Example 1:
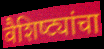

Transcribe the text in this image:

वैशिष्ट्यांचा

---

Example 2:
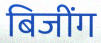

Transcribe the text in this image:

बिजींग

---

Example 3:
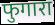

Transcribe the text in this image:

फुगारा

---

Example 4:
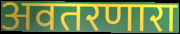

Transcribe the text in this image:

अवतरणारा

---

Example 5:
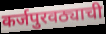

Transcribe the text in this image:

कर्जपुरवठ्याची